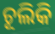
ଚୂଲିକି